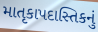
માતૃકાપદાસ્તિકનું